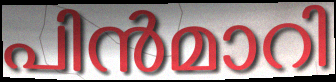
പിൻമാറി